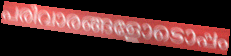
പരിവാരങ്ങളോടൊപ്പം